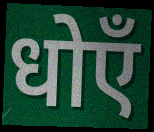
धोएँ